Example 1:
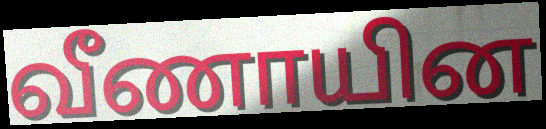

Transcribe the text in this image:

வீணாயின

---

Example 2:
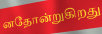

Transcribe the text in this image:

னதோன்றுகிறது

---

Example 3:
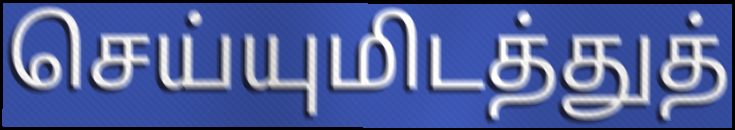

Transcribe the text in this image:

செய்யுமிடத்துத்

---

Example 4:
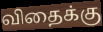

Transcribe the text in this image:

விதைக்கு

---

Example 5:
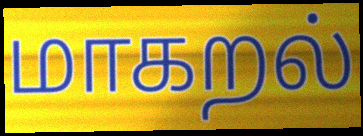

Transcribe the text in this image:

மாகறல்